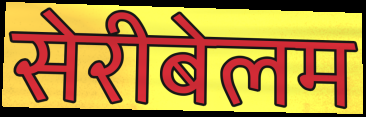
सेरीबेलम